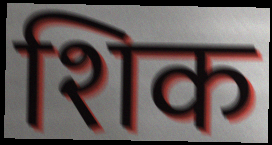
शिक